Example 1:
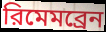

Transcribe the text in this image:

রিমেমব্রেন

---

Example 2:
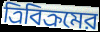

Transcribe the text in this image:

ত্রিবিক্রমের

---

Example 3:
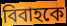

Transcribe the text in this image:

বিবাহকে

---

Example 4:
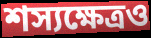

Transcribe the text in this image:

শস্যক্ষেত্রও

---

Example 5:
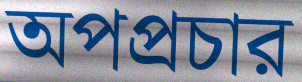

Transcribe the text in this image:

অপপ্রচার